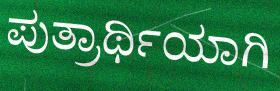
ಪುತ್ರಾರ್ಥಿಯಾಗಿ